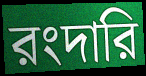
রংদারি